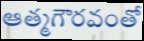
ఆత్మగౌరవంతో